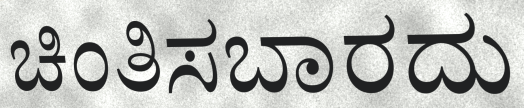
ಚಿಂತಿಸಬಾರದು